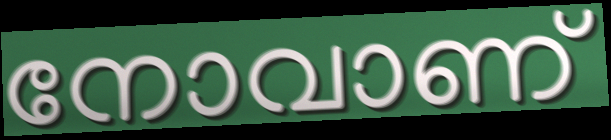
നോവാണ്